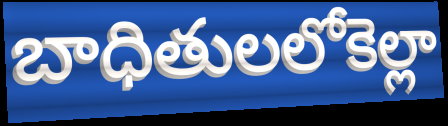
బాధితులలోకెల్లా